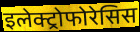
इलेक्ट्रोफोरेसिस